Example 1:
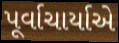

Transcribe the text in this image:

પૂર્વાચાર્યાએ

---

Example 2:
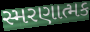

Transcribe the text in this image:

સ્મરણાત્મક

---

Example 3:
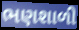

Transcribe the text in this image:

ભણશાળી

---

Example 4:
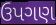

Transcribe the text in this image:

ઉપગણ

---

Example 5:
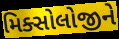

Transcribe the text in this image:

મિક્સોલોજીને